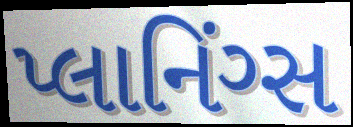
પ્લાનિંગ્સ